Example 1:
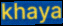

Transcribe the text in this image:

khaya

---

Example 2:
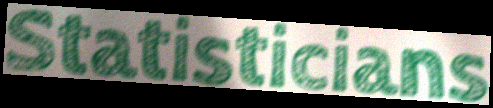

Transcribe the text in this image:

Statisticians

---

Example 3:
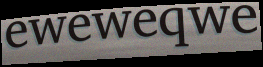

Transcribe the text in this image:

eweweqwe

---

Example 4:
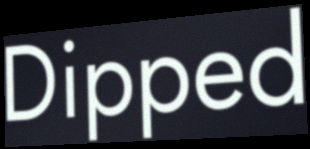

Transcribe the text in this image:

Dipped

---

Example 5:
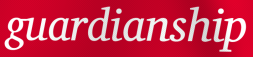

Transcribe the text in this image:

guardianship